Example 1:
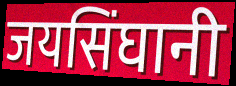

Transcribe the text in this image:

जयसिंघानी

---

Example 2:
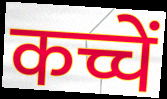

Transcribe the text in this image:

कच्चें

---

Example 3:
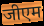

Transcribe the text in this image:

जीएम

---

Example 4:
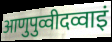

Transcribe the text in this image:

आणुपुव्वीदव्वाइं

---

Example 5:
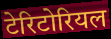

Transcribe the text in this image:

टेरिटोरियल